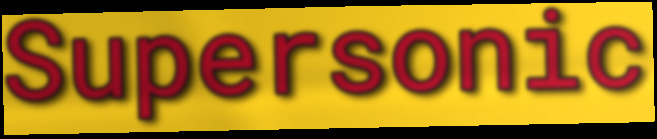
Supersonic